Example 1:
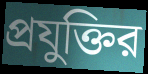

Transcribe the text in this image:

প্রযুক্তির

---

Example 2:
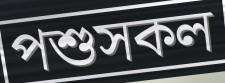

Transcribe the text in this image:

পশুসকল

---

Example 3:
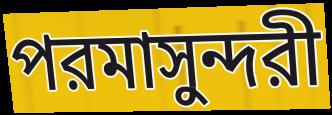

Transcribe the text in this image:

পরমাসুন্দরী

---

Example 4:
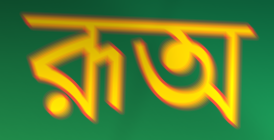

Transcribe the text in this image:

রূঅ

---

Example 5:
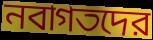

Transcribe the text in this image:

নবাগতদের